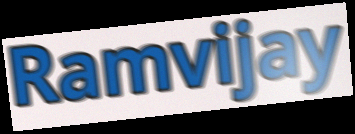
Ramvijay